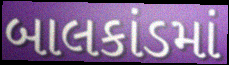
બાલકાંડમાં